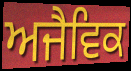
ਅਜੈਵਿਕ